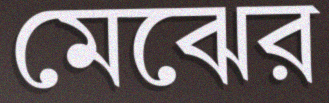
মেঝের